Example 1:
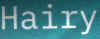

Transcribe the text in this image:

Hairy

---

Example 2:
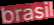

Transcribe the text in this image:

brasil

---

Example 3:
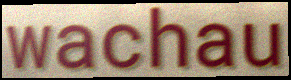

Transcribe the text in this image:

wachau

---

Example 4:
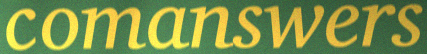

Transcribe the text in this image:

comanswers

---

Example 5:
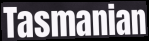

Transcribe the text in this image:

Tasmanian